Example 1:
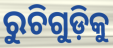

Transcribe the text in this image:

ରୁଚିଗୁଡ଼ିକୁ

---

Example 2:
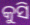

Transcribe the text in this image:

କୁସି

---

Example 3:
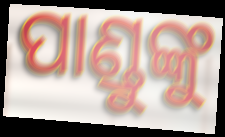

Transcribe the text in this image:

ପାଣ୍ଡୁଙ୍କୁ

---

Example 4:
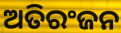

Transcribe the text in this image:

ଅତିରଂଜନ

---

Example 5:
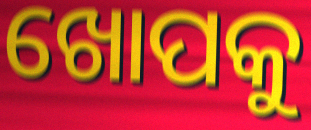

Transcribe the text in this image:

ଖୋପକୁ